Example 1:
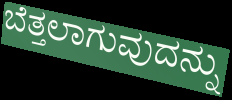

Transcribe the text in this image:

ಬೆತ್ತಲಾಗುವುದನ್ನು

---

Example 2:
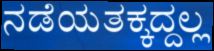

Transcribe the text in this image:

ನಡೆಯತಕ್ಕದ್ದಲ್ಲ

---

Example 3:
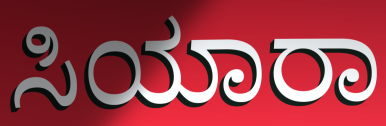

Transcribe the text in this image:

ಸಿಯಾರಾ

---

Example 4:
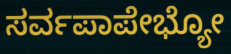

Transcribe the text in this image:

ಸರ್ವಪಾಪೇಭ್ಯೋ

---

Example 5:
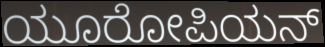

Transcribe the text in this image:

ಯೂರೋಪಿಯನ್